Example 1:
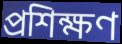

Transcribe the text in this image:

প্ৰশিক্ষণ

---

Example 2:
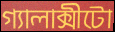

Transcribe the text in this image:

গ্যালাক্সীটো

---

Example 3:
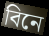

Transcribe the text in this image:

বিনে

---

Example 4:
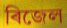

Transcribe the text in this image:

ৰিজেল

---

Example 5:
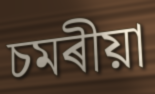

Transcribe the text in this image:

চমৰীয়া